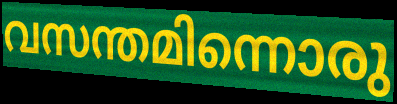
വസന്തമിന്നൊരു